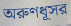
অরুণধূসর